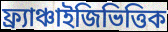
ফ্র্যাঞ্চাইজিভিত্তিক